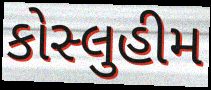
કોસ્લુહીમ